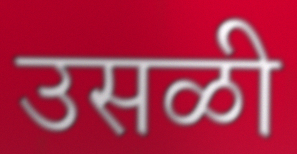
उसळी